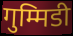
गुम्मिडी